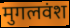
मुगलवंश